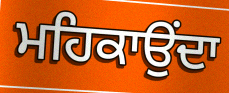
ਮਹਿਕਾਉਂਦਾ